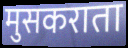
मुसकराता